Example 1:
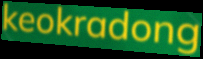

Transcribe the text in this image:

keokradong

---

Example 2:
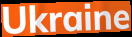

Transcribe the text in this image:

Ukraine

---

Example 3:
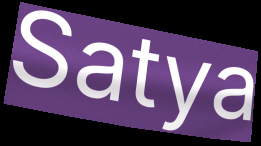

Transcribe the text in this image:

Satya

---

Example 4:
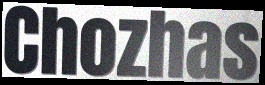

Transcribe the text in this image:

Chozhas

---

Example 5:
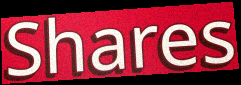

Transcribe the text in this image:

Shares